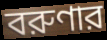
বরুণার